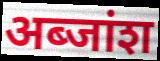
अब्जांश